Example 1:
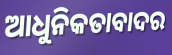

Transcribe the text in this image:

ଆଧୁନିକତାବାଦର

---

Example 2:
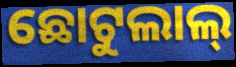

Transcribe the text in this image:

ଛୋଟୁଲାଲ୍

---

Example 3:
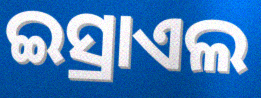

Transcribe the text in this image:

ଇସ୍ରାଏଲ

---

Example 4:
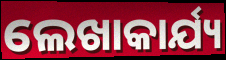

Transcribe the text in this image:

ଲେଖାକାର୍ଯ୍ୟ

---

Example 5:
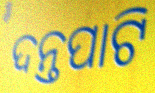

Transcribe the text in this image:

ଦନ୍ତପାଟି